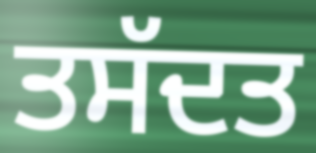
ਤਸੱਦਤ